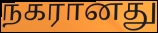
நகரானது